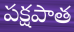
పక్షపాత